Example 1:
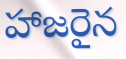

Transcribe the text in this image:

హాజరైన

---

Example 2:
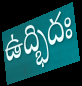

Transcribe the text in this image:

ఉద్భిదః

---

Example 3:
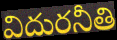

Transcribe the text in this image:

విదురనీతి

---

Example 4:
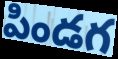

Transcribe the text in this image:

పిండగ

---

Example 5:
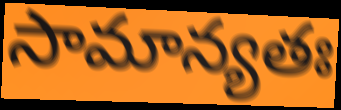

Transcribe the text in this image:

సామాన్యతః